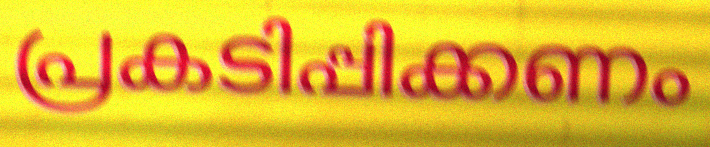
പ്രകടിപ്പിക്കണം